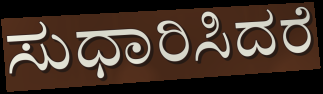
ಸುಧಾರಿಸಿದರೆ